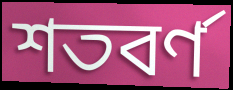
শতবর্ণ